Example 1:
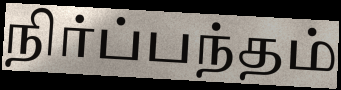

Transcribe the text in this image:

நிர்ப்பந்தம்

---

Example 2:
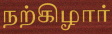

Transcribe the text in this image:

நற்கிழார்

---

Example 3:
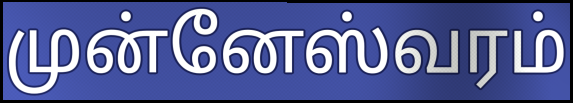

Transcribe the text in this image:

முன்னேஸ்வரம்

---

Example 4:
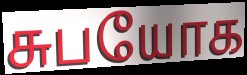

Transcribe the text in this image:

சுபயோக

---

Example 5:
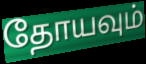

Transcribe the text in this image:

தோயவும்